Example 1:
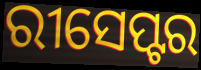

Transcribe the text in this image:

ରୀସେପ୍ଟର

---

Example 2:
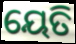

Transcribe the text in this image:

ୟେତି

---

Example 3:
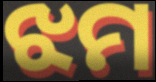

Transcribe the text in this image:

ଝମ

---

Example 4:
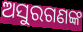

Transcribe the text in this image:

ଅସୁରଗଣଙ୍କ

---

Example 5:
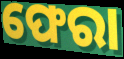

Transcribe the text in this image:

ଫେରା